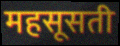
महसूसती